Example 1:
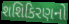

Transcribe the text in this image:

શશિકિરણનો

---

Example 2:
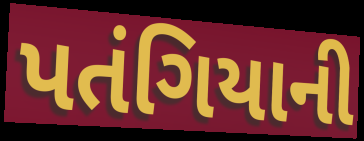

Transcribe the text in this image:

પતંગિયાની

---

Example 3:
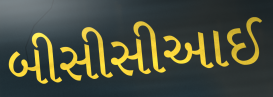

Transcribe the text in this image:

બીસીસીઆઈ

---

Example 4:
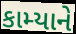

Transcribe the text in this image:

કામ્યાને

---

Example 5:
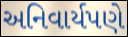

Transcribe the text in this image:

અનિવાર્યપણે